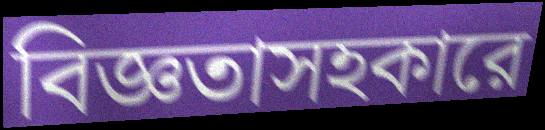
বিজ্ঞতাসহকারে